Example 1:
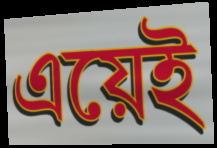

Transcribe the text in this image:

এয়েই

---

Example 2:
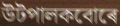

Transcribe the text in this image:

উটপালকবোৰে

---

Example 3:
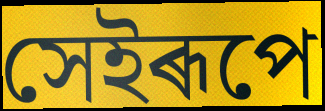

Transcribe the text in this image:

সেইৰূপে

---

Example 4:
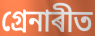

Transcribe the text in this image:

গ্ৰেনাৰীত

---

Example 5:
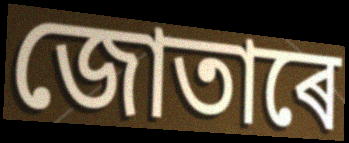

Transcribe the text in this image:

জোতাৰে